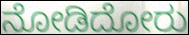
ನೋಡಿದೋರು